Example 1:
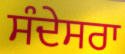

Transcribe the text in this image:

ਸੰਦੇਸਰਾ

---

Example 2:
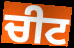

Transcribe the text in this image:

ਚੀਟ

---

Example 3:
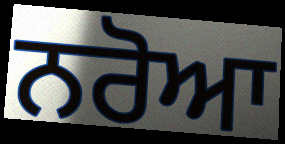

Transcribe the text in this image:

ਨਰੋਆ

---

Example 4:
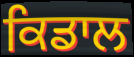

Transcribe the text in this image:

ਕਿਡਾਲ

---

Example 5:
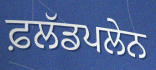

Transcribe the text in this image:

ਫ਼ਲੱਡਪਲੇਨ